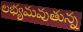
లభ్యమవుతున్న